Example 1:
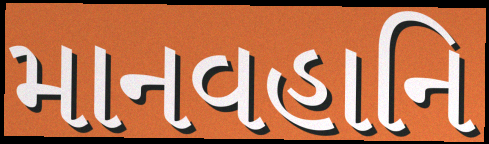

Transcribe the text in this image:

માનવહાનિ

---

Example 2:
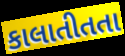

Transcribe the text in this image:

કાલાતીતતા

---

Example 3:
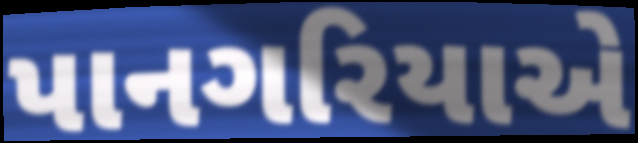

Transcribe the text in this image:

પાનગરિયાએ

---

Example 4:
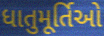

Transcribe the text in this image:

ધાતુમૂર્તિઓ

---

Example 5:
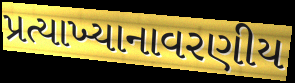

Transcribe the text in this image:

પ્રત્યાખ્યાનાવરણીય